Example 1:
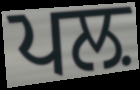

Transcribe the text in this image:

ਪਲ਼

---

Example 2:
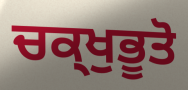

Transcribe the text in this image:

ਚਕ੍ਖੁਭੂਤੋ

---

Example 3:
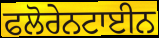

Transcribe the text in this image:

ਫਲੋਰੇਨਟਾਈਨ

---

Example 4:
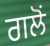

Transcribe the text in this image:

ਗਲੋਂ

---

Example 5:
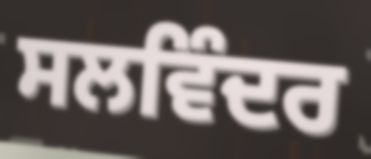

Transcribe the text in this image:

ਸਲਵਿੰਦਰ